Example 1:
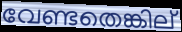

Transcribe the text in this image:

വേണ്ടതെങ്കില്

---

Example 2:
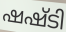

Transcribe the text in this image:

ഷഷ്ടി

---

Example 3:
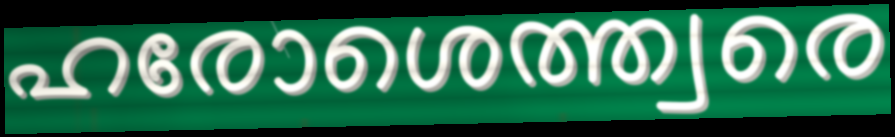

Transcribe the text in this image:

ഹരോശെത്ത്വരെ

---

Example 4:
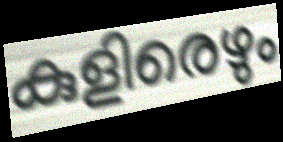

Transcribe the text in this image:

കുളിരെഴും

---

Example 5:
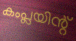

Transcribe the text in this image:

കംപ്ലയിന്റ്